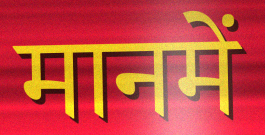
मानमें